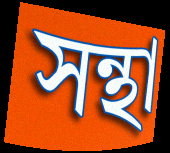
সন্থা